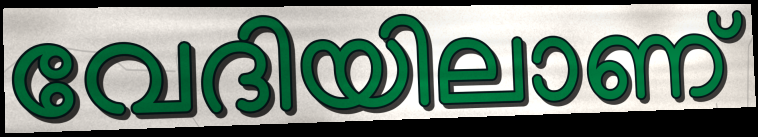
വേദിയിലാണ്